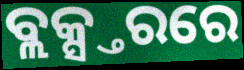
ବ୍ଲକ୍ସ୍ତରରେ